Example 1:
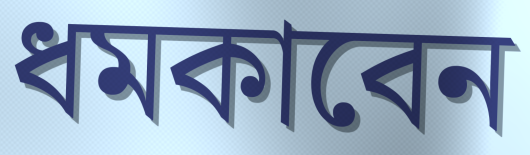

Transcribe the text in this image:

ধমকাবেন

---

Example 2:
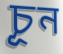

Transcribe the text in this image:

চূন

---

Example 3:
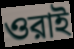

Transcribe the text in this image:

ওরাই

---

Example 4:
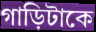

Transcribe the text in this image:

গাড়িটাকে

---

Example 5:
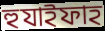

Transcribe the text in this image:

হুযাইফাহ